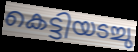
കെട്ടിയടച്ചു